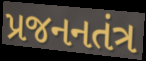
પ્રજનનતંત્ર